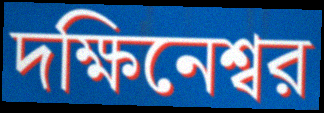
দক্ষিনেশ্বর